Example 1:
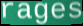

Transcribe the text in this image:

rages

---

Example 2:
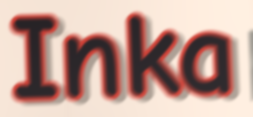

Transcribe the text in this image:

Inka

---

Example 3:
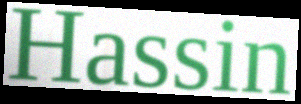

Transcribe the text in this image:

Hassin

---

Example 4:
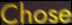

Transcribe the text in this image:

Chose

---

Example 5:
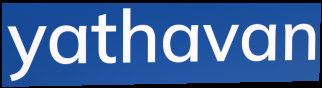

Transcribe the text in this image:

yathavan